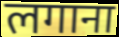
लगाना